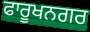
ਫਾਰੂਖਨਗਰ